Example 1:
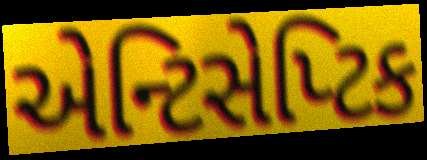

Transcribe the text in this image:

એન્ટિસેપ્ટિક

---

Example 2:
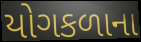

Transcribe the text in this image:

યોગકળાના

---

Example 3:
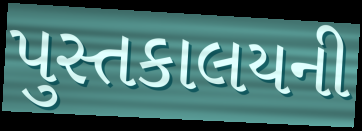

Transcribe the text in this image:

પુસ્તકાલયની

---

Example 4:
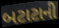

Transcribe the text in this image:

બટાટાની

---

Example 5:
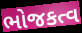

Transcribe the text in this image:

ભોજકત્વ